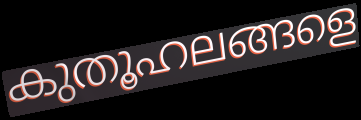
കുതൂഹലങ്ങളെ